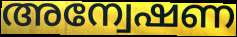
അന്വേഷണ